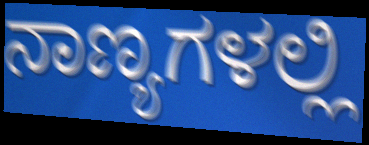
ನಾಣ್ಯಗಳಲ್ಲಿ